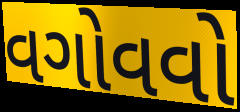
વગોવવો